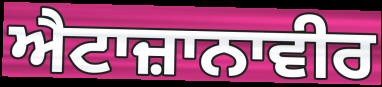
ਐਟਾਜ਼ਾਨਾਵੀਰ